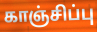
காஞ்சிப்பு